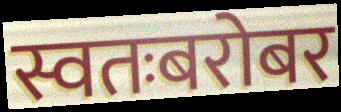
स्वतःबरोबर